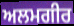
ਅਲਮਗੀਰ